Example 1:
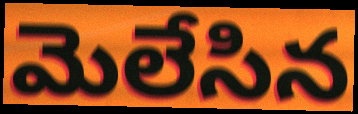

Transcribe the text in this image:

మెలేసిన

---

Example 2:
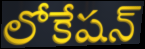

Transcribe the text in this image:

లోకేషన్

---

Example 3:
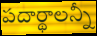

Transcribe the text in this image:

పదార్థాలన్నీ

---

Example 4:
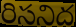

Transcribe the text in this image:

రిసనిద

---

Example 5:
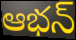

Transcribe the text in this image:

ఆభన్